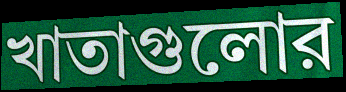
খাতাগুলোর